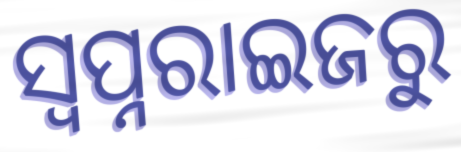
ସ୍ୱପ୍ନରାଇଜରୁ